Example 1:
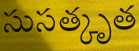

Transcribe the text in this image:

సుసత్కృత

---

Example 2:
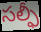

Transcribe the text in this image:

సల్ఫీ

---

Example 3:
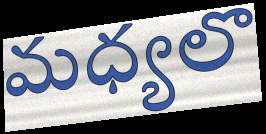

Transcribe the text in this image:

మధ్యలొ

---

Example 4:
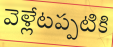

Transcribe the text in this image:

వెళ్లేటప్పటికి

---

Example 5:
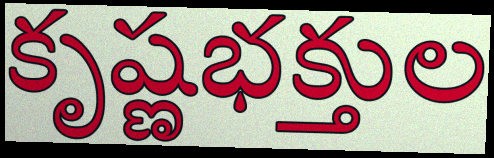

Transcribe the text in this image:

కృష్ణభక్తుల